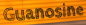
Guanosine